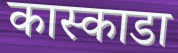
कास्काडा